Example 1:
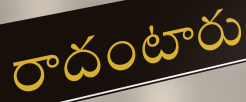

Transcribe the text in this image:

రాదంటారు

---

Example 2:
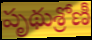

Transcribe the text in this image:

పృథుశ్రోణీ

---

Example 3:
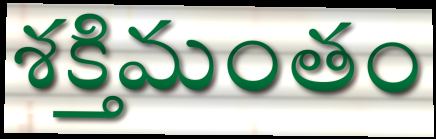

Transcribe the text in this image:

శక్తిమంతం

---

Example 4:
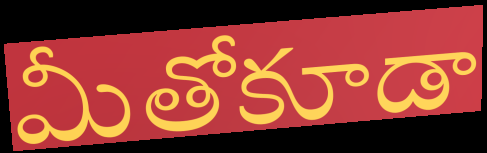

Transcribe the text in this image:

మీతోకూడా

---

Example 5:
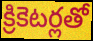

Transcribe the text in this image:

క్రికెటర్లతో